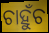
ଚାହୁଁଚ